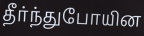
தீர்ந்துபோயின